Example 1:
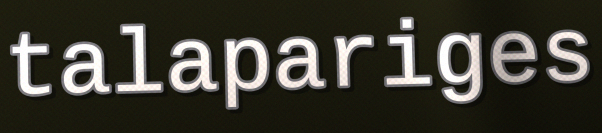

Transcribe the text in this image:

talapariges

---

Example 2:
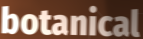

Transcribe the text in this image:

botanical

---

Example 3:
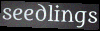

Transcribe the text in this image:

seedlings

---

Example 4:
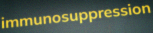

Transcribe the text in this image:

immunosuppression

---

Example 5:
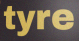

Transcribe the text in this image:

tyre